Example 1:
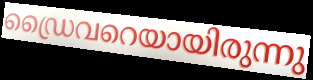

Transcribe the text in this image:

ഡ്രൈവറെയായിരുന്നു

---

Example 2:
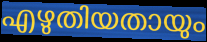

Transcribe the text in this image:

എഴുതിയതായും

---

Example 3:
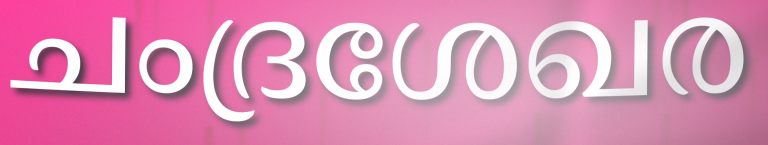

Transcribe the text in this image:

ചംദ്രശേഖര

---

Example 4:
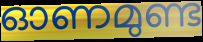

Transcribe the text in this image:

ഓണമുണ്ട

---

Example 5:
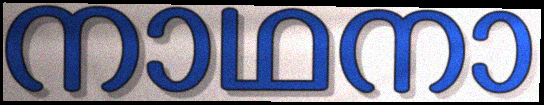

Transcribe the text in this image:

നാഥനാ